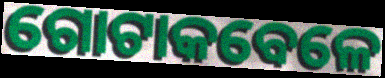
ଗୋଟାକବେଳେ